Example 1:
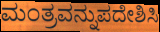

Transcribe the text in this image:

ಮಂತ್ರವನ್ನುಪದೇಶಿಸಿ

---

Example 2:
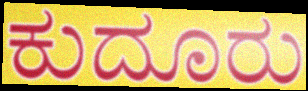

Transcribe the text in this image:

ಕುದೂರು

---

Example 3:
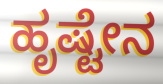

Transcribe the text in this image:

ಹೃಷ್ಟೇನ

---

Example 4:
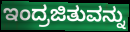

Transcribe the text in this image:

ಇಂದ್ರಜಿತುವನ್ನು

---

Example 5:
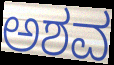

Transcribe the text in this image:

ಅಶವ